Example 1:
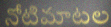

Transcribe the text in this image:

నోటిమాటల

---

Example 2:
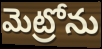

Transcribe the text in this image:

మెట్రోను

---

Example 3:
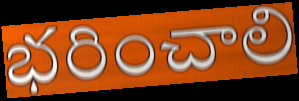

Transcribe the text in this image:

భరించాలి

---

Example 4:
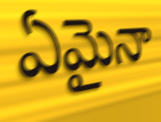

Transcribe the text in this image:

ఏమైనా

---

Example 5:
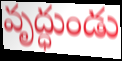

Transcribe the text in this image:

వృద్ధుండు